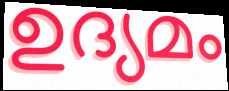
ഉദ്യമം